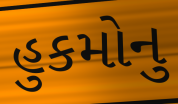
હુકમોનુ